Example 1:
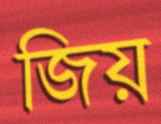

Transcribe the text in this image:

জিয়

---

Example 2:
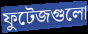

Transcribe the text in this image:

ফুটেজগুলো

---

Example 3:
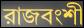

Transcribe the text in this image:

রাজবংশী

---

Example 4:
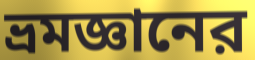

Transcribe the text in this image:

ভ্রমজ্ঞানের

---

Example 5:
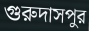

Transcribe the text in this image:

গুরুদাসপুর